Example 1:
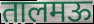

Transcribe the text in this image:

तालमऊ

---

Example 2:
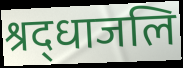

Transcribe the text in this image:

श्रद्धाजलि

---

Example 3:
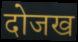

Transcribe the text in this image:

दोजख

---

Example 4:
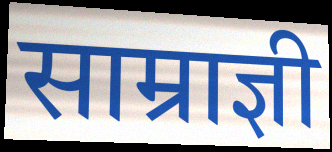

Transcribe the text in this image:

साम्राज्ञी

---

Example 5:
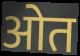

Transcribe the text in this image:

ओत